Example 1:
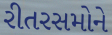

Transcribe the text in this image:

રીતરસમોને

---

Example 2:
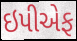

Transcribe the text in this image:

ઇપીએફ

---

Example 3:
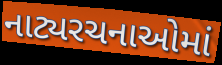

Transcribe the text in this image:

નાટ્યરચનાઓમાં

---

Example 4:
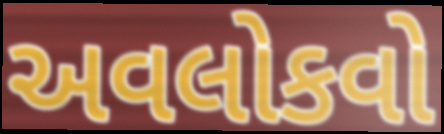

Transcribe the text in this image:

અવલોકવો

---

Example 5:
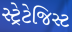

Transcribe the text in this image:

સ્ટ્રેટેજિસ્ટ